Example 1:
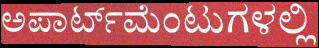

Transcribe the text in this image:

ಅಪಾರ್ಟ್‌ಮೆಂಟುಗಳಲ್ಲಿ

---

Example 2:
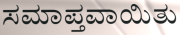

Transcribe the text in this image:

ಸಮಾಪ್ತವಾಯಿತು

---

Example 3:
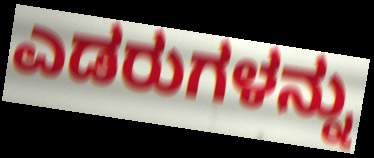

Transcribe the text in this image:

ಎಡರುಗಳನ್ನು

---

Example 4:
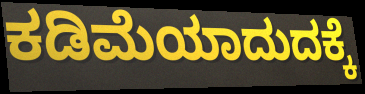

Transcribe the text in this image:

ಕಡಿಮೆಯಾದುದಕ್ಕೆ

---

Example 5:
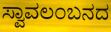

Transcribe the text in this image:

ಸ್ವಾವಲಂಬನದ